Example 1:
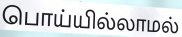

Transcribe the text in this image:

பொய்யில்லாமல்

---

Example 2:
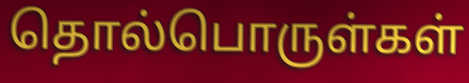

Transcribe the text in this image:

தொல்பொருள்கள்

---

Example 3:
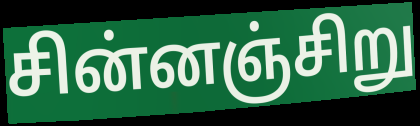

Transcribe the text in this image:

சின்னஞ்சிறு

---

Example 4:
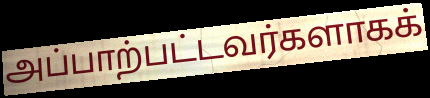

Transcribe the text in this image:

அப்பாற்பட்டவர்களாகக்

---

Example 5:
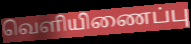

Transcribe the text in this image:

வெளியிணைப்பு